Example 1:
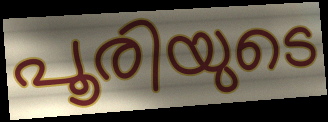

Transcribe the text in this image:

പൂരിയുടെ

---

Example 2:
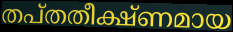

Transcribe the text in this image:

തപ്തതീക്ഷ്ണമായ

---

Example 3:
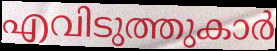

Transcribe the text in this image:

എവിടുത്തുകാർ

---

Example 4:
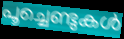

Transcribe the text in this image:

പൂച്ചെണ്ടുകൾ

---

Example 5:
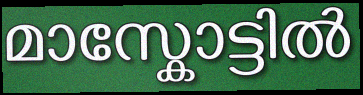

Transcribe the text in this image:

മാസ്കോട്ടിൽ